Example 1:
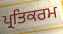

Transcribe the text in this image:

ਪ੍ਰਤਿਕਰਮ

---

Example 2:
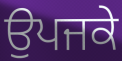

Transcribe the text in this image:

ਉਪਜਕੇ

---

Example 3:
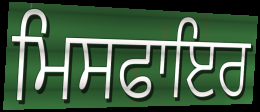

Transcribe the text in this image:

ਮਿਸਫਾਇਰ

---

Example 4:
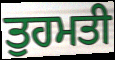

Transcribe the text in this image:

ਤੁਹਮਤੀ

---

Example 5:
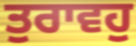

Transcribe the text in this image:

ਤੁਰਾਵਹੁ